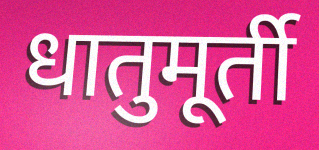
धातुमूर्ती